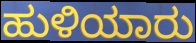
ಹುಳಿಯಾರು